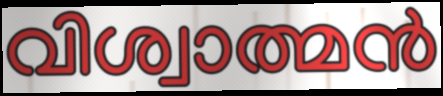
വിശ്വാത്മൻ